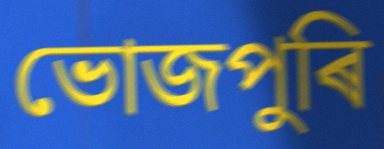
ভোজপুৰি